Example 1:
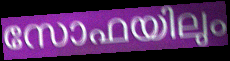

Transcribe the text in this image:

സോഫയിലും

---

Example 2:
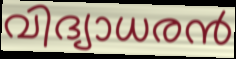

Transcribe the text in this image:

വിദ്യാധരൻ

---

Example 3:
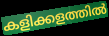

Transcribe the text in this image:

കളിക്കളത്തിൽ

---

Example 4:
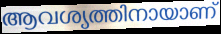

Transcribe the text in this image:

ആവശ്യത്തിനായാണ്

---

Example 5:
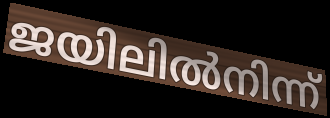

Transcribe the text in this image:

ജയിലിൽനിന്ന്